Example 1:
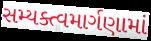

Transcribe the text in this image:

સમ્યક્ત્વમાર્ગણામાં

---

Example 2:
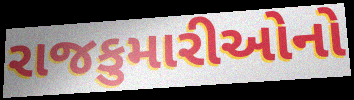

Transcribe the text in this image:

રાજકુમારીઓનો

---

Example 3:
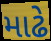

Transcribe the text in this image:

માઢે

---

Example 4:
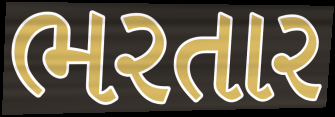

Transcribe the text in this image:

ભરતાર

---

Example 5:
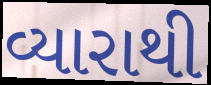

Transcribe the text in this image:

વ્યારાથી